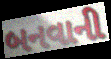
બનવાની